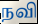
நவி